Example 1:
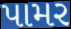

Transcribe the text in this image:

પામર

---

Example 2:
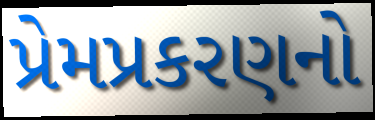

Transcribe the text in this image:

પ્રેમપ્રકરણનો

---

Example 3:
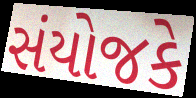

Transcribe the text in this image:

સંયોજકે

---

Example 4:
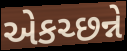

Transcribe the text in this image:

એકચ્છન્ને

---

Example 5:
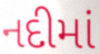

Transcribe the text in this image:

નદીમાં